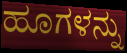
ಹೂಗಳನ್ನು